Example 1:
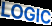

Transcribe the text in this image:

LOGIC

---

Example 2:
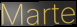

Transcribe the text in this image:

Marte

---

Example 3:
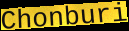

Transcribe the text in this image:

Chonburi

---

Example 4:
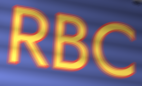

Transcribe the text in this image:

RBC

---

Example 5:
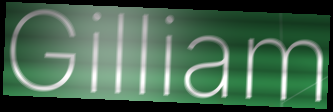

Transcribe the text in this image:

Gilliam